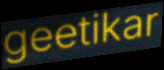
geetikar